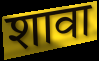
शावा